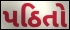
પઠિતો